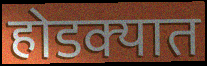
होडक्यात